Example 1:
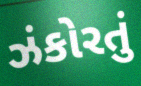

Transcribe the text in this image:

ઝંકોરતું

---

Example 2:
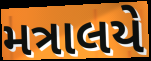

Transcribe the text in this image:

મત્રાલયે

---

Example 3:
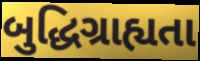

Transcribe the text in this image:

બુદ્ધિગ્રાહ્યતા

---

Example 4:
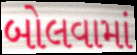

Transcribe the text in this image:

બોલવામાં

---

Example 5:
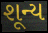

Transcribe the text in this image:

શૂન્ય